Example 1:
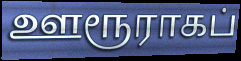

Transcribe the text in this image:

ஊரூராகப்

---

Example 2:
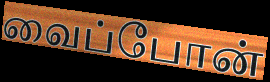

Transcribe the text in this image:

வைப்போன்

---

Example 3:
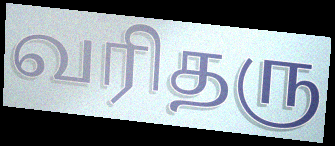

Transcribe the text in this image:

வரிதரு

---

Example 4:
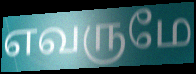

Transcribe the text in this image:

எவருமே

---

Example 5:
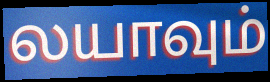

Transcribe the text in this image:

லயாவும்